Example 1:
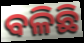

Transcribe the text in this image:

ବଳିଛି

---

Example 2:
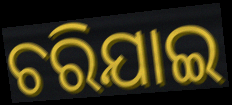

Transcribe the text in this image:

ଚରିଯାଇ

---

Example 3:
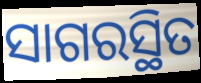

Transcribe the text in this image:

ସାଗରସ୍ଥିତ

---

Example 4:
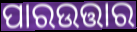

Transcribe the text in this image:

ପାରଉତ୍ତାର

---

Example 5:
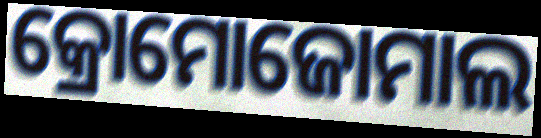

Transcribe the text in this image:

କ୍ରୋମୋଜୋମାଲ